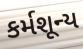
કર્મશૂન્ય